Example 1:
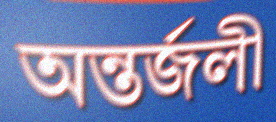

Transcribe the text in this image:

অন্তর্জলী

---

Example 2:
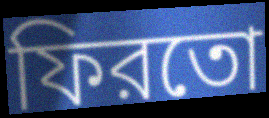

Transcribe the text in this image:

ফিরতো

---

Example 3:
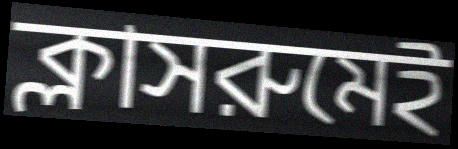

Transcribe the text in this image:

ক্লাসরুমেই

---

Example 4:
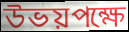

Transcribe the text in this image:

উভয়পক্ষে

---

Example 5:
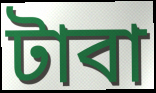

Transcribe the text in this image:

টাবা